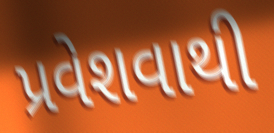
પ્રવેશવાથી